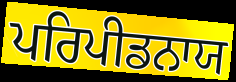
ਪਰਿਪੀਡਨਾਯ